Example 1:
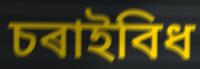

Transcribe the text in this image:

চৰাইবিধ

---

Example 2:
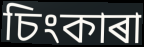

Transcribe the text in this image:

চিংকাৰা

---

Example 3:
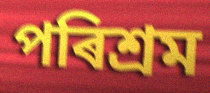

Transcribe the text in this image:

পৰিশ্ৰম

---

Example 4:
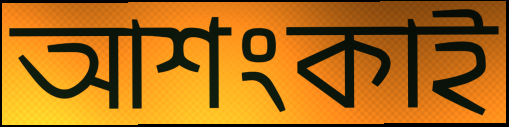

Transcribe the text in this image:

আশংকাই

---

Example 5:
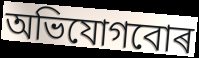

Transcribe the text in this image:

অভিযোগবোৰ